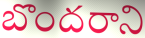
బొందరాని